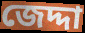
জেদ্দা